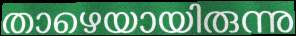
താഴെയായിരുന്നു